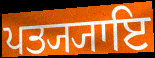
ਪਤ੍ਯ੍ਯਾਇ